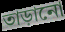
তাড়ানো